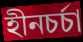
হীনচর্চা